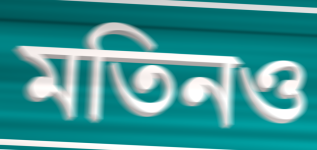
মতিনও